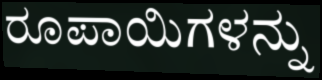
ರೂಪಾಯಿಗಳನ್ನು